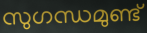
സുഗന്ധമുണ്ട്